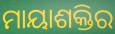
ମାୟାଶକ୍ତିର